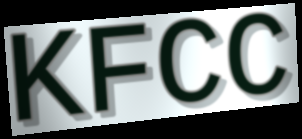
KFCC